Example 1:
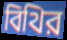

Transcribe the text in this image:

বিথির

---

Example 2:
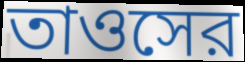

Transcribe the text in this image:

তাওসের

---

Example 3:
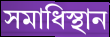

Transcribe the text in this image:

সমাধিস্থান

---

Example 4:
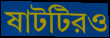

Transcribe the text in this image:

ষাটটিরও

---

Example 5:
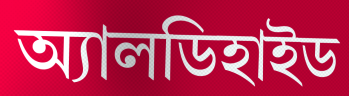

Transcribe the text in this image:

অ্যালডিহাইড